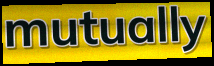
mutually